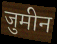
जुमीन